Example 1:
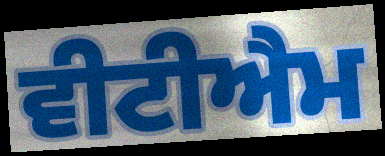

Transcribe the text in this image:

ਵੀਟੀਐਮ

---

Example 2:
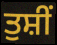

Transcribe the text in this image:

ਤੁਸ਼ੀਂ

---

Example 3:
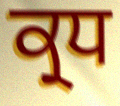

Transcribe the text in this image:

ਕ੍ਰਧ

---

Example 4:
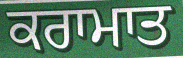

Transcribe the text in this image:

ਕਰਾਮਾਤ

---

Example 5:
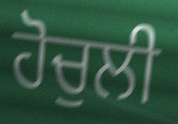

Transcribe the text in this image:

ਹੋਚੁਲੀ